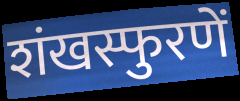
शंखस्फुरणें